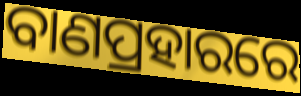
ବାଣପ୍ରହାରରେ